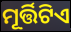
ମୂର୍ତ୍ତିଟିଏ